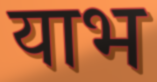
याभ